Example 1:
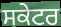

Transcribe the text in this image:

ਸਕੇਟਰ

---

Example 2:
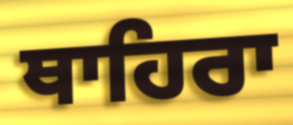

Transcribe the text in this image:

ਥਾਹਿਰਾ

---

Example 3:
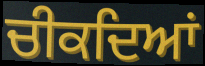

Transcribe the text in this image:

ਚੀਕਦਿਆਂ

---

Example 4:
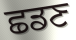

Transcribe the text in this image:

ਛਡਣ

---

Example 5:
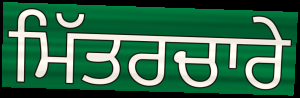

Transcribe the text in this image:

ਮਿੱਤਰਚਾਰੇ